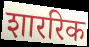
शाररिक